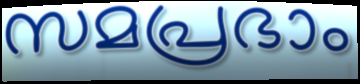
സമപ്രഭാം